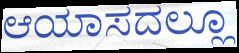
ಆಯಾಸದಲ್ಲೂ